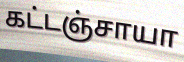
கட்டஞ்சாயா